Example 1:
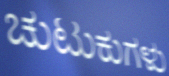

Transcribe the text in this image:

ಚುಟುಕುಗಳು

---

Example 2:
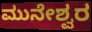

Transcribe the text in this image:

ಮುನೇಶ್ವರ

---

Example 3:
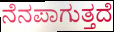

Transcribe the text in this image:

ನೆನಪಾಗುತ್ತದೆ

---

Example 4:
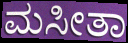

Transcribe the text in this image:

ಮಸೀತಾ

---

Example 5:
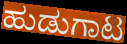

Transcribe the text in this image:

ಹುಡುಗಾಟ